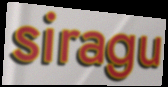
siragu